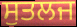
ਸੁਤਲਜ